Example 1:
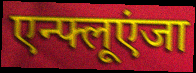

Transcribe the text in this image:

एन्फ्लूएंजा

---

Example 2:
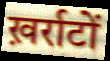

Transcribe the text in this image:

ख़र्राटों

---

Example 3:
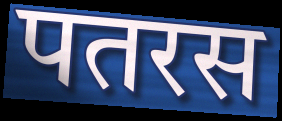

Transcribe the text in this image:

पतरस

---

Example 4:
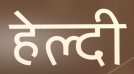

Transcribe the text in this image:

हेल्‍दी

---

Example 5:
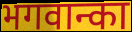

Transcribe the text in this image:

भगवान्का